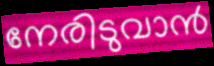
നേരിടുവാൻ